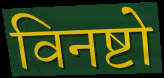
विनष्टो